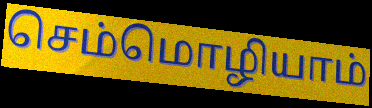
செம்மொழியாம்